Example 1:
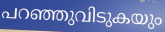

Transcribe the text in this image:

പറഞ്ഞുവിടുകയും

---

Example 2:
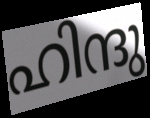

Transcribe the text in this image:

ഹിന്ദു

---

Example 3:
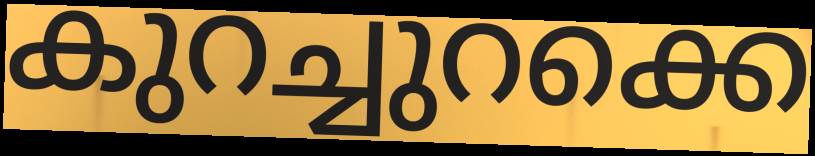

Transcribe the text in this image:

കുറച്ചുറക്കെ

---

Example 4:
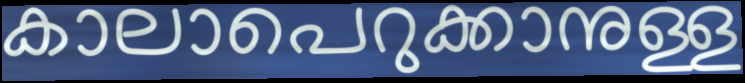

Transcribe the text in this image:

കാലാപെറുക്കാനുള്ള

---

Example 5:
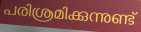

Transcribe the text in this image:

പരിശ്രമിക്കുന്നുണ്ട്